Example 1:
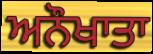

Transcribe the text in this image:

ਅਨੌਖਾਤਾ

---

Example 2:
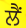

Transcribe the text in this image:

ਲੈਂ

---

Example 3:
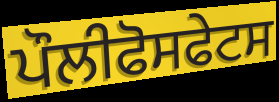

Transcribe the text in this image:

ਪੌਲੀਫੋਸਫੇਟਸ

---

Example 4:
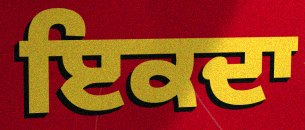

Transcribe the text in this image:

ਇਕਦਾ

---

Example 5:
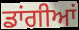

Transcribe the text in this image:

ਡਾਂਗੀਆਂ